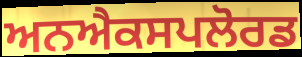
ਅਨਐਕਸਪਲੋਰਡ